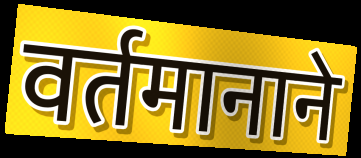
वर्तमानाने